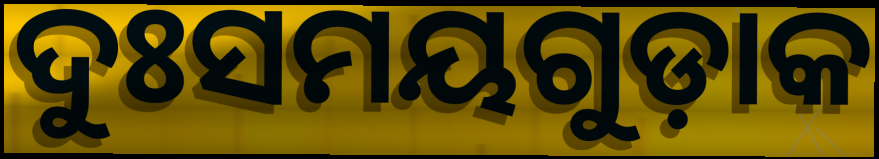
ଦୁଃସମୟଗୁଡ଼ାକ